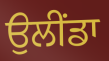
ਉਲੀਂਡਾ